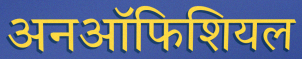
अनऑफिशियल